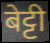
बेट्टी